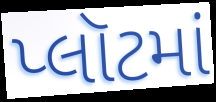
પ્લૉટમાં